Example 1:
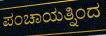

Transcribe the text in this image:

ಪಂಚಾಯತ್ನಿಂದ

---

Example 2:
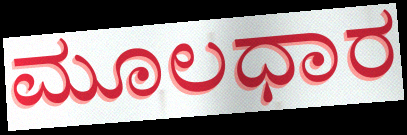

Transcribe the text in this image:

ಮೂಲಧಾರ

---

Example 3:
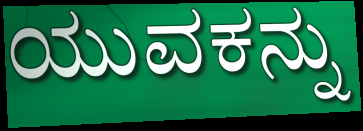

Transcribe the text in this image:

ಯುವಕನ್ನು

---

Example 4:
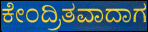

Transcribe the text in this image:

ಕೇಂದ್ರಿತವಾದಾಗ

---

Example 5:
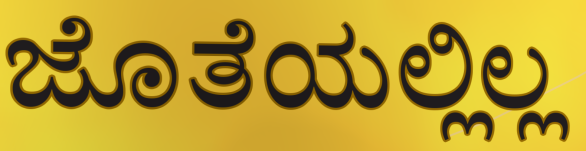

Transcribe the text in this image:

ಜೊತೆಯಲ್ಲಿಲ್ಲ